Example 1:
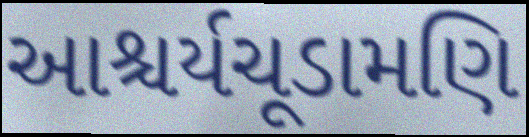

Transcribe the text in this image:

આશ્ચર્યચૂડામણિ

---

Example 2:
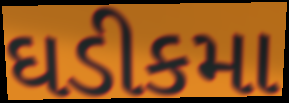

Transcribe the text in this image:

ઘડીકમા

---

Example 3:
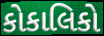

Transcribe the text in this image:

કોકાલિકો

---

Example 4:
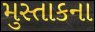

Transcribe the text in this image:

મુસ્તાકના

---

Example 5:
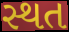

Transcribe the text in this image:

સ્થત